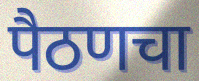
पैठणचा